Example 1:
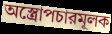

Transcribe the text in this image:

অস্ত্রোপচারমূলক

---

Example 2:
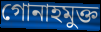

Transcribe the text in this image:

গোনাহমুক্ত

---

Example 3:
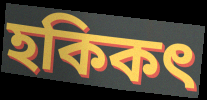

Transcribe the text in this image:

হকিকৎ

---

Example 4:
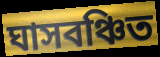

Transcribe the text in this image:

ঘাসবঞ্চিত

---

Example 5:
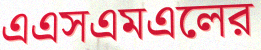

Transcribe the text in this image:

এএসএমএলের